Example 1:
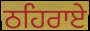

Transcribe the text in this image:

ਠਹਿਰਾਏ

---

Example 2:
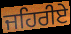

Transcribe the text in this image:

ਜਹਿਰੀਏ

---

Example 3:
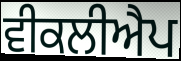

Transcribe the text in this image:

ਵੀਕਲੀਐਪ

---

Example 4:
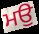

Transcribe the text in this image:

ਮਉ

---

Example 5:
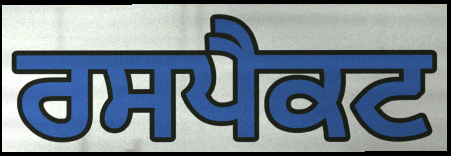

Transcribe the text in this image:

ਰਸਪੈਕਟ